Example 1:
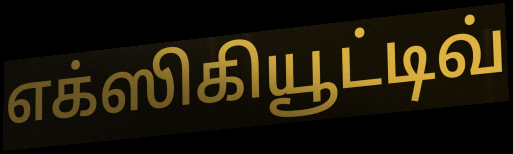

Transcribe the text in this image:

எக்ஸிகியூட்டிவ்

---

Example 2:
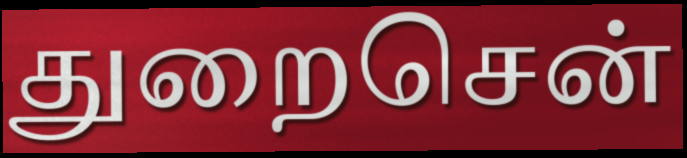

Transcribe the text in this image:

துறைசென்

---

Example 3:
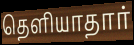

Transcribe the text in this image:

தெளியாதார்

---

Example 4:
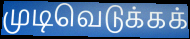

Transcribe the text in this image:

முடிவெடுக்கக்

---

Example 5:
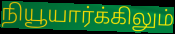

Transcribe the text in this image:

நியூயார்க்கிலும்